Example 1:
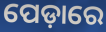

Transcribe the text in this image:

ପେଡ଼ାରେ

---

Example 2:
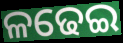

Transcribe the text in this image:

ଳଢେଇ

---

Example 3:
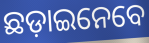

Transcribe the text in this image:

ଛଡ଼ାଇନେବେ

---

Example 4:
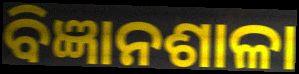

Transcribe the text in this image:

ବିଜ୍ଞାନଶାଳା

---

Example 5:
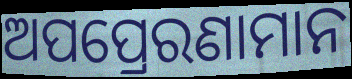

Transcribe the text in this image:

ଅପପ୍ରେରଣାମାନ